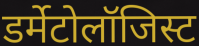
डर्मेटोलॉजिस्ट